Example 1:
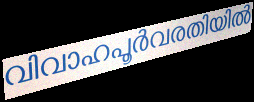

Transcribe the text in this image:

വിവാഹപൂർവരതിയിൽ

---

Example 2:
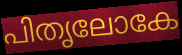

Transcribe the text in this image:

പിതൃലോകേ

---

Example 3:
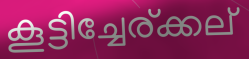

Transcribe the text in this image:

കൂട്ടിച്ചേര്ക്കല്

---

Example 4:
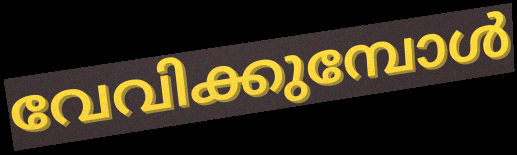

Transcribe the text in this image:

വേവിക്കുമ്പോൾ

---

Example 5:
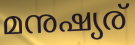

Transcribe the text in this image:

മനുഷ്യര്